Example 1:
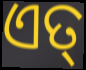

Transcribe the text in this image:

ଏତ୍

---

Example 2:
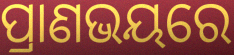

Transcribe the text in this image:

ପ୍ରାଣଭୟରେ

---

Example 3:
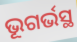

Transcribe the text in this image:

ଭୂଗର୍ଭସ୍ଥ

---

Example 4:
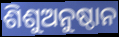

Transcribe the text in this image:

ଶିଶୁଅନୁଷ୍ଠାନ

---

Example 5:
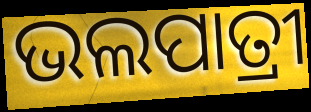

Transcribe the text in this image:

ଭଲପାତ୍ରୀ